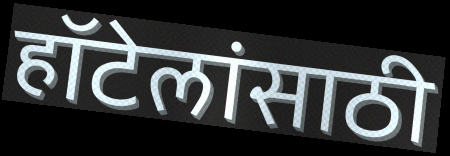
हॉटेलांसाठी